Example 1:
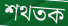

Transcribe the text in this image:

শথতক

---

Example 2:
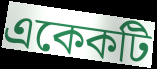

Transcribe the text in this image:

একেকটি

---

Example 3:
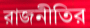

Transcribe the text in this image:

রাজনীতির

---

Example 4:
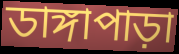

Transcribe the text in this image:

ডাঙ্গাপাড়া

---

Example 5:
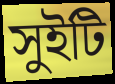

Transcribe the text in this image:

সুইটি